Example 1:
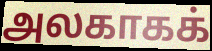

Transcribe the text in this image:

அலகாகக்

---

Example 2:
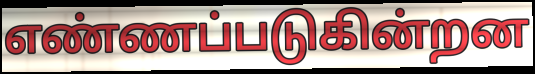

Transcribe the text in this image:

எண்ணப்படுகின்றன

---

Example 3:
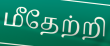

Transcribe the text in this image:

மீதேற்றி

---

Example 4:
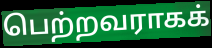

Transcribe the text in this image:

பெற்றவராகக்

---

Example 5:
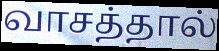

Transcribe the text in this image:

வாசத்தால்